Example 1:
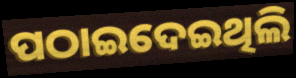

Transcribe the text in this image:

ପଠାଇଦେଇଥିଲି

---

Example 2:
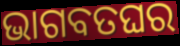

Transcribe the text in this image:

ଭାଗବତଘର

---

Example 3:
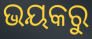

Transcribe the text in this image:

ଭୟକରୁ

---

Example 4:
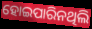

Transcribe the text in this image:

ହୋଇପାରିନଥିଲି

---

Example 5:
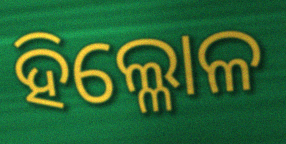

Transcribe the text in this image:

ହିଲ୍ଳୋଳ